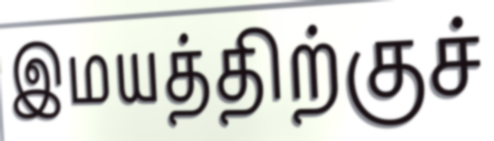
இமயத்திற்குச்